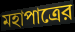
মহাপাত্রের